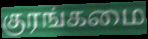
குரங்கமை